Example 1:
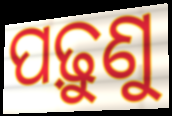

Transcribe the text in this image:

ପଢ଼ୁଣୁ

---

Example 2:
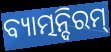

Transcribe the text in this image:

ବ୍ୟାତ୍ମନ୍ଦିରମ୍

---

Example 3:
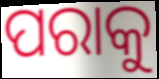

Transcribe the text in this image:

ପରାକୁ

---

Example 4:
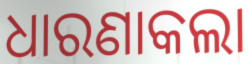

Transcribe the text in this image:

ଧାରଣାକଲା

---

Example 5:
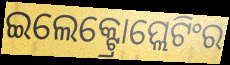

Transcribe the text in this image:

ଇଲେକ୍ଟ୍ରୋପ୍ଲେଟିଂର